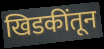
खिडकींतून